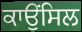
ਕਾਉਂਸਿਲ